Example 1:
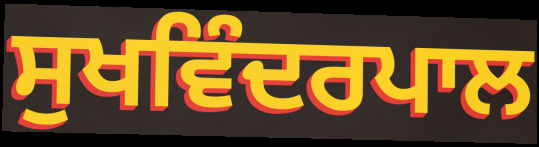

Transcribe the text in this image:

ਸੁਖਵਿੰਦਰਪਾਲ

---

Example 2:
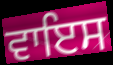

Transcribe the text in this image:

ਵਾਇਸ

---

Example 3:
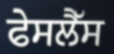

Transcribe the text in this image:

ਫੇਸਲੈੱਸ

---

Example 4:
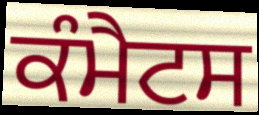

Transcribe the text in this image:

ਕੰਮੈਟਸ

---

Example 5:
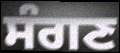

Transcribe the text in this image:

ਸੰਗਣ